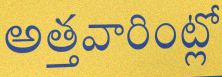
అత్తవారింట్లో